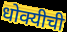
धोक्यीची